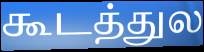
கூடத்துல